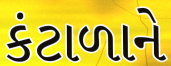
કંટાળાને